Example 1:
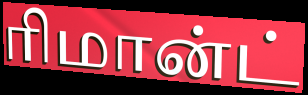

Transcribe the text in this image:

ரிமான்ட்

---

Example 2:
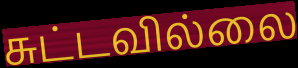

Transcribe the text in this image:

சுட்டவில்லை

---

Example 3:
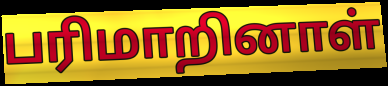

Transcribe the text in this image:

பரிமாறினாள்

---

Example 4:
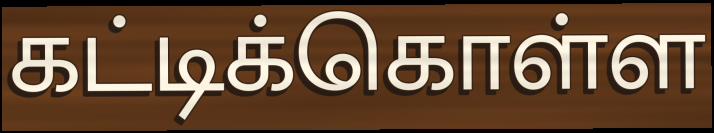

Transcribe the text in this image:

கட்டிக்கொள்ள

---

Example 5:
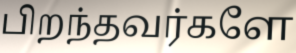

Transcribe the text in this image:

பிறந்தவர்களே